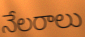
నేలరాలు